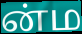
ன்ம